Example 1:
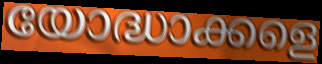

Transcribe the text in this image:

യോദ്ധാക്കളെ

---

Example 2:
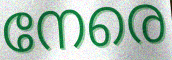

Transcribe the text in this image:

നേരെ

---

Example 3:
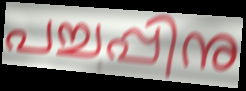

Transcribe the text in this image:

പച്ചപ്പിനു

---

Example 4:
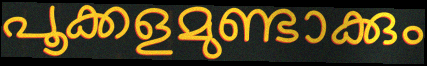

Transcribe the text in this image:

പൂക്കളമുണ്ടാക്കും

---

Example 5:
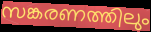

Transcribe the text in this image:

സങ്കരണത്തിലും